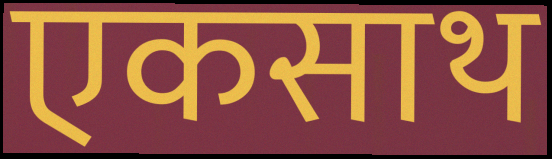
एकसाथ